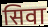
सिवा